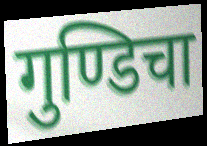
गुण्डिचा